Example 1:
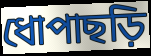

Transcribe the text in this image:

ধোপাছড়ি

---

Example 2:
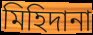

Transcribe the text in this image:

মিহিদানা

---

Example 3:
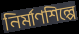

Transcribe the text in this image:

নির্মাণশিল্পে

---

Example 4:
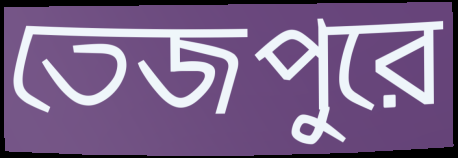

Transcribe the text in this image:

তেজপুরে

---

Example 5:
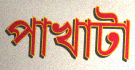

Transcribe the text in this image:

পাখাটা